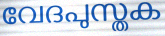
വേദപുസ്തക